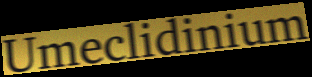
Umeclidinium